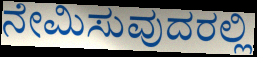
ನೇಮಿಸುವುದರಲ್ಲಿ